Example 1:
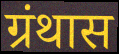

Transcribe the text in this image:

ग्रंथास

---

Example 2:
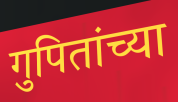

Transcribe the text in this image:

गुपितांच्या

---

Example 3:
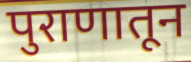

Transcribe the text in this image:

पुराणातून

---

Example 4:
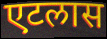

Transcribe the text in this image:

एटलास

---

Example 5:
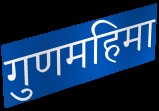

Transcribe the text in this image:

गुणमहिमा